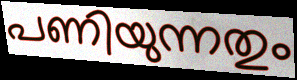
പണിയുന്നതും